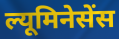
ल्यूमिनेसेंस